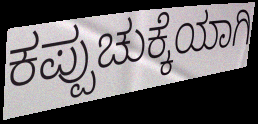
ಕಪ್ಪುಚುಕ್ಕೆಯಾಗಿ